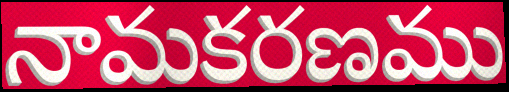
నామకరణము